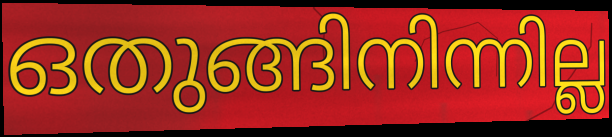
ഒതുങ്ങിനിന്നില്ല